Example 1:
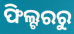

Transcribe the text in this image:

ଫିଲ୍ଟରରୁ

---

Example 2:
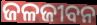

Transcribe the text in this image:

ଜଳଜୀବନ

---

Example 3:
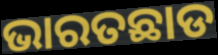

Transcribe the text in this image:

ଭାରତଛାଡ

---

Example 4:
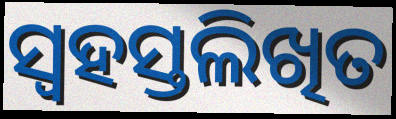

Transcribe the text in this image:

ସ୍ୱହସ୍ତଲିଖିତ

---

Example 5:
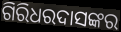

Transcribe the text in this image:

ଗିରିଧରଦାସଙ୍କର